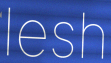
lesh